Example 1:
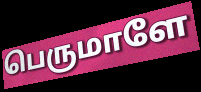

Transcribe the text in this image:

பெருமாளே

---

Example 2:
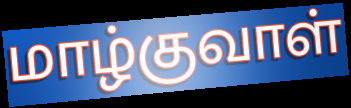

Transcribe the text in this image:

மாழ்குவாள்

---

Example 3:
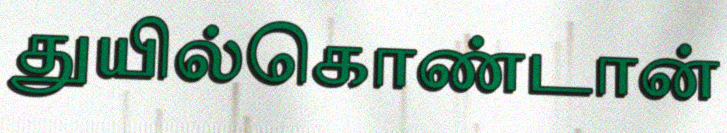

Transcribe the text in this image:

துயில்கொண்டான்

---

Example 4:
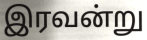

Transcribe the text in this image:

இரவன்று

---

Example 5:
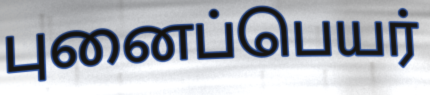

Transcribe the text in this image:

புனைப்பெயர்